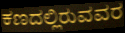
ಕಣದಲ್ಲಿರುವವರ